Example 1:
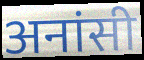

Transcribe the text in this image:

अनांसी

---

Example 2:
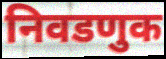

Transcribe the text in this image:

निवडणुक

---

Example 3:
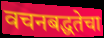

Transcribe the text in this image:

वचनबद्धतेचा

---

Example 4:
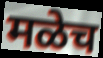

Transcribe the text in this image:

मळेच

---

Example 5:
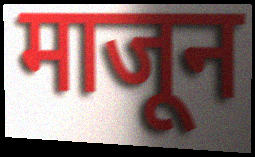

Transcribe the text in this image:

माजून